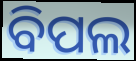
ବିପଲ